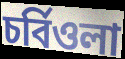
চর্বিওলা